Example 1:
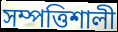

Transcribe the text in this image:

সম্পত্তিশালী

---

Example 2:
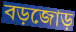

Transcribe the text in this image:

বড়জোড়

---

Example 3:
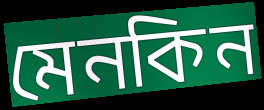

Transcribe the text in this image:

মেনকিন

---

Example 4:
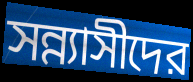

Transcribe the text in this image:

সন্ন্যাসীদের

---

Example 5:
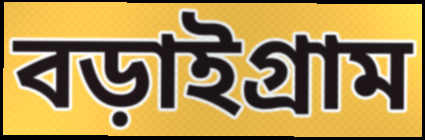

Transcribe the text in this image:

বড়াইগ্রাম